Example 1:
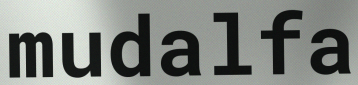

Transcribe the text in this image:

mudalfa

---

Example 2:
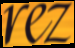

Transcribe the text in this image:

rez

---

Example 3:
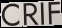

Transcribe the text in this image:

CRIF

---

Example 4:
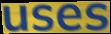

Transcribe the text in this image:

uses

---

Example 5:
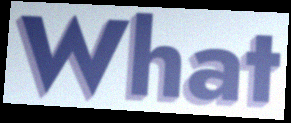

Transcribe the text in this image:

What